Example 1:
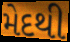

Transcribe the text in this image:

મેદથી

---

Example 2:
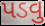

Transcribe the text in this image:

પડવુ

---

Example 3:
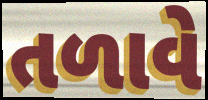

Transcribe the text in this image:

તળાવે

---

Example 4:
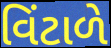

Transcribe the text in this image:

વિંટાળે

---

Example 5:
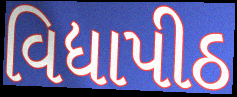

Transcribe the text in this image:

વિદ્યાપીઠ